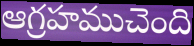
ఆగ్రహముచెంది